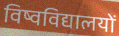
विष्वविद्यालयों